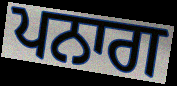
ਪਨਾਗ